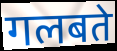
गलबते